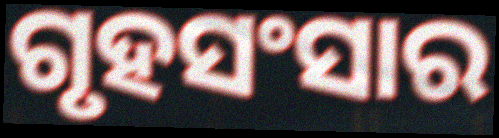
ଗୃହସଂସାର